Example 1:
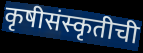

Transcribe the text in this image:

कृषीसंस्कृतीची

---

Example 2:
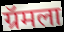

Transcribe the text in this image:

ग्रॅमला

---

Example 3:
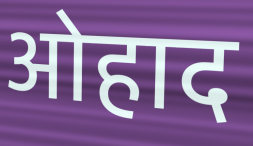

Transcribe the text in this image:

ओहाद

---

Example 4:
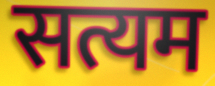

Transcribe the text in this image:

सत्यम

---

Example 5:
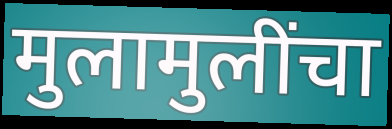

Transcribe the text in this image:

मुलामुलींचा